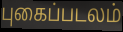
புகைப்படலம்